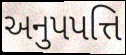
અનુપપત્તિ